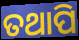
ତଥାପି